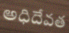
అధిదేవత